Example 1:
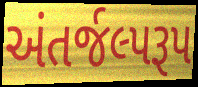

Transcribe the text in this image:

અંતર્જલ્પરૂપ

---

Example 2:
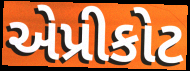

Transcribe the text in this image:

એપ્રીકોટ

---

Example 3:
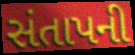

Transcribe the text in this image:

સંતાપની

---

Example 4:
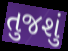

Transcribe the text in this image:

તુજશું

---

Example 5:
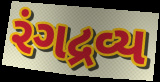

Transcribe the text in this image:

રંગદ્રવ્ય